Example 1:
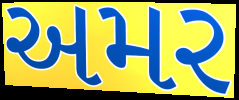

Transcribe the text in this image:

અમર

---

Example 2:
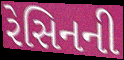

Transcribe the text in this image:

રેસિનની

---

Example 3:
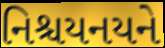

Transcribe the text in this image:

નિશ્ચયનયને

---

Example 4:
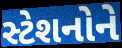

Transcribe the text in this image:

સ્ટેશનોને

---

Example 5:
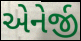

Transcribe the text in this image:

એનેર્જી